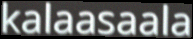
kalaasaala